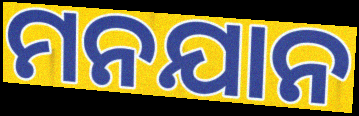
ମନଯାନ